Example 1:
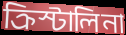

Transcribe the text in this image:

ক্রিস্টালিনা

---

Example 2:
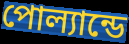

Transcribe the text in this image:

পোল্যান্ডে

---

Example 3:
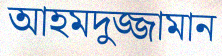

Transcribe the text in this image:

আহমদুজ্জামান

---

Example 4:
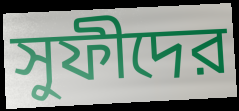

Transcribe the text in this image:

সুফীদের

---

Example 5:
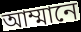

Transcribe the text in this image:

আম্মানে